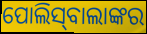
ପୋଲିସ୍‌ବାଲାଙ୍କର